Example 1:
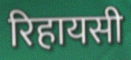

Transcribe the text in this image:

रिहायसी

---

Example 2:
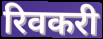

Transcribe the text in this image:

रिवकरी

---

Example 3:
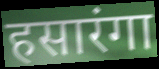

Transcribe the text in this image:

हसारंगा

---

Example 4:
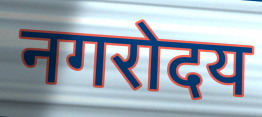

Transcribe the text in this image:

नगरोदय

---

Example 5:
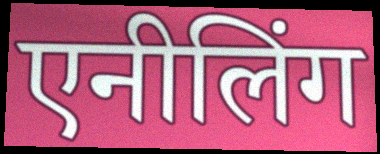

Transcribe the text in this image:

एनीलिंग